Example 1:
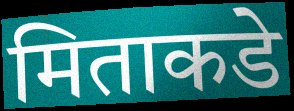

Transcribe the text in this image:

मिताकडे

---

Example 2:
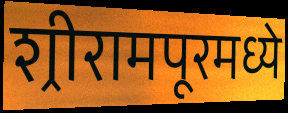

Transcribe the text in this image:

श्रीरामपूरमध्ये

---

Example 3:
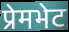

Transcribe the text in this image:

प्रेमभेट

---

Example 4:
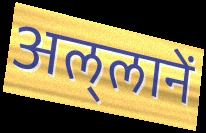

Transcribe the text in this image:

अल्लानें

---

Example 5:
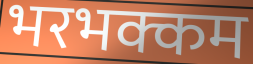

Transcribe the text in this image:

भरभक्कम